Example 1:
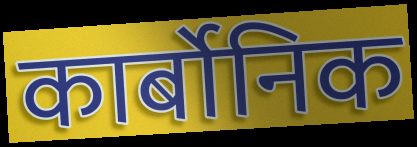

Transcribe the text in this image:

कार्बोनिक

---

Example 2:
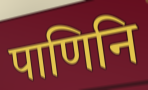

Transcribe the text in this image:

पाणिनि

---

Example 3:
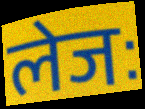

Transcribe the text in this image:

लेजः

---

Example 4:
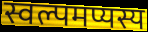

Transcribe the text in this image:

स्वल्पमप्यस्य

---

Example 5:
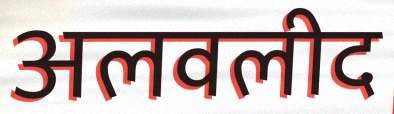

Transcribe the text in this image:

अलवलीद